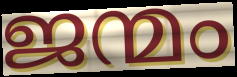
ജന്മം